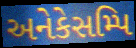
અનેકેસમ્પિ